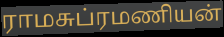
ராமசுப்ரமணியன்